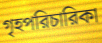
গৃহপরিচারিকা